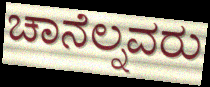
ಚಾನೆಲ್ನವರು